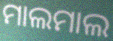
ମାଲମାଲ